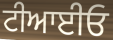
ਟੀਆਈਓ